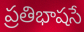
ప్రతిభాషసే